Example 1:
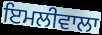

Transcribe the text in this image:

ਇਮਲੀਵਾਲਾ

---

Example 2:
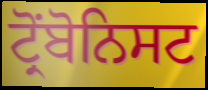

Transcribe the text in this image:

ਟ੍ਰੋਂਬੋਨਿਸਟ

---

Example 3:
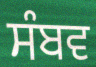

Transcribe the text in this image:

ਸੰਬਵ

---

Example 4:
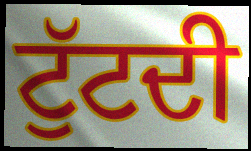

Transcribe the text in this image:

ਟੁੱਟਦੀ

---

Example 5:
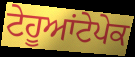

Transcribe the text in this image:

ਟੇਹੂਆਂਟੇਪੇਕ